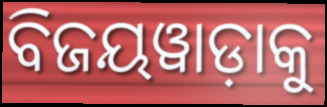
ବିଜୟୱାଡ଼ାକୁ